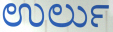
ಉರ್ಲು